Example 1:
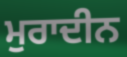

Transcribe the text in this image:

ਮੁਰਾਦੀਨ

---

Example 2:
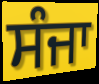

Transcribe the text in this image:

ਸੰਜਾ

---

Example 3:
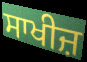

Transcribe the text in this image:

ਸਾਖੀਜ਼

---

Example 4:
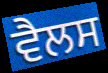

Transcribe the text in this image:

ਵੈਲਸ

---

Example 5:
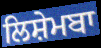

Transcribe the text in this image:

ਲਿਸ਼ੇਮਬਾ